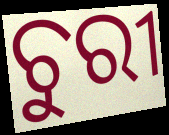
ଚୁରୀ